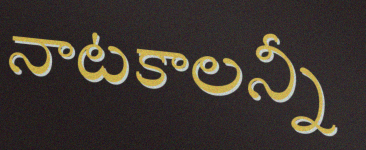
నాటకాలన్నీ